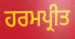
ਹਰਮਪ੍ਰੀਤ